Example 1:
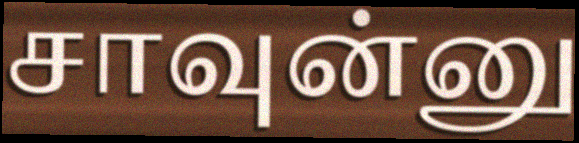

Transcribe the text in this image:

சாவுன்னு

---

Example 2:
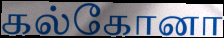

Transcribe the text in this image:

கல்கோனா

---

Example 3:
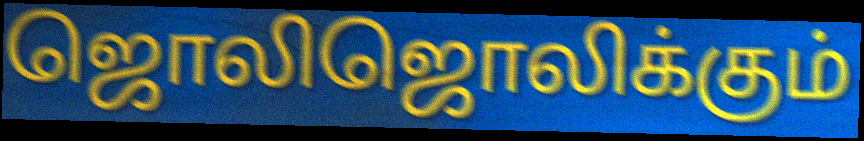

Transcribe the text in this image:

ஜொலிஜொலிக்கும்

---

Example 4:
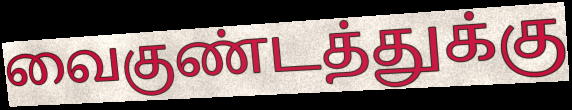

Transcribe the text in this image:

வைகுண்டத்துக்கு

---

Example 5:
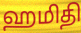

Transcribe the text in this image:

ஹமிதி